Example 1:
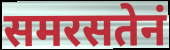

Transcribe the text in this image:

समरसतेनं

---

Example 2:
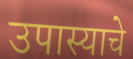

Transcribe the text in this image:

उपास्याचे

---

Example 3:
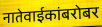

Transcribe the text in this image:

नातेवाईकांबरोबर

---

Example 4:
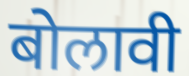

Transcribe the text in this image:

बोलावी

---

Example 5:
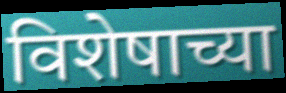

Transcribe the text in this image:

विशेषाच्या